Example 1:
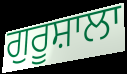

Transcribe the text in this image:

ਗੁਰੂਸ਼ਾਲਾ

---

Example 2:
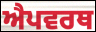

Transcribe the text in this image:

ਐਪਵਰਥ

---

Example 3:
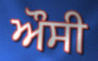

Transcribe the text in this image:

ਔਸੀ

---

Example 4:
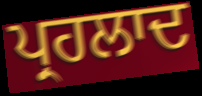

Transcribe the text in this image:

ਪ੍ਰਹਲਾਦ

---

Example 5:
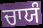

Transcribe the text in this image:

ਚਾਯੰ